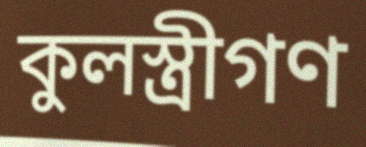
কুলস্ত্রীগণ